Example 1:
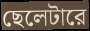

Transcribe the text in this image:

ছেলেটারে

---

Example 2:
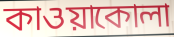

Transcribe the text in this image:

কাওয়াকোলা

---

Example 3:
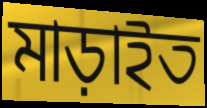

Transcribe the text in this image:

মাড়াইত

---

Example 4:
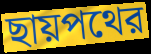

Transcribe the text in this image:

ছায়পথের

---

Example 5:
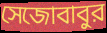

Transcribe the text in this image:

সেজোবাবুর